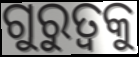
ଗୁରୁତ୍ୱକୁ